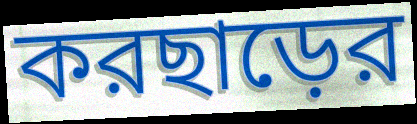
করছাড়ের